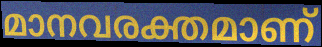
മാനവരക്തമാണ്